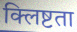
क्‍लिष्टता